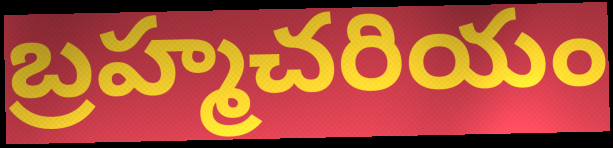
బ్రహ్మచరియం